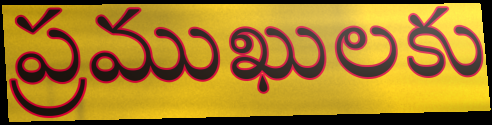
ప్రముఖులకు